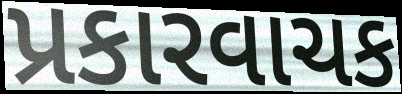
પ્રકારવાચક